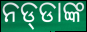
ନଡ୍‌ଡାଙ୍କ